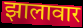
झालावार